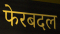
फेरबदल